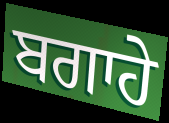
ਬਗਾਹੇ